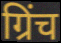
ग्रिंच